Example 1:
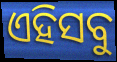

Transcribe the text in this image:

ଏହିସବୁ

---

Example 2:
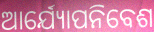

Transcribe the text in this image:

ଆର୍ଯ୍ୟୋପନିବେଶ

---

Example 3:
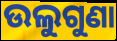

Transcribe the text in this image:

ଉଲୁଗୁଣା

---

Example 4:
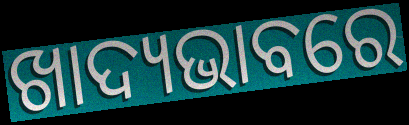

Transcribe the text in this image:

ଖାଦ୍ୟଭାବରେ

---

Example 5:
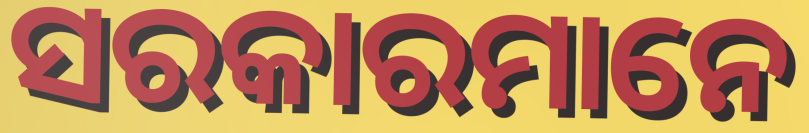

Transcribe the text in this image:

ସରକାରମାନେ